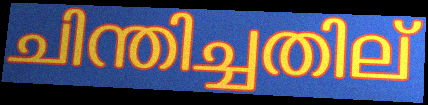
ചിന്തിച്ചതില്